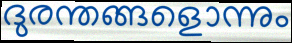
ദുരന്തങ്ങളൊന്നും